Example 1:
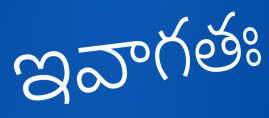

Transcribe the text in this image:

ఇవాగతః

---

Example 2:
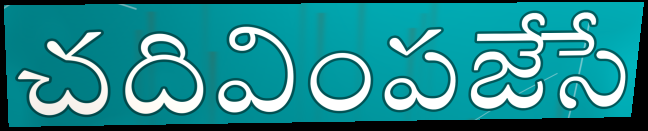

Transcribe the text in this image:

చదివింపజేసే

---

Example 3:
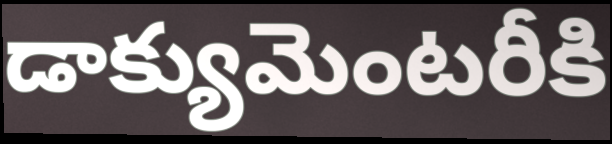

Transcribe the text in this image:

డాక్యుమెంటరీకి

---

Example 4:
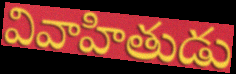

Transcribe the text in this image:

వివాహితుడు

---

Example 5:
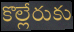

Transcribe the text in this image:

కొల్లేరుకు